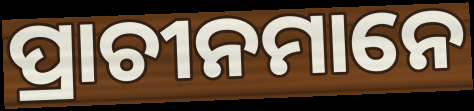
ପ୍ରାଚୀନମାନେ